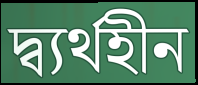
দ্ব্যৰ্থহীন